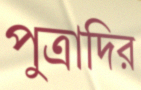
পুত্রাদির